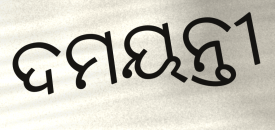
ଦମୟନ୍ତୀ